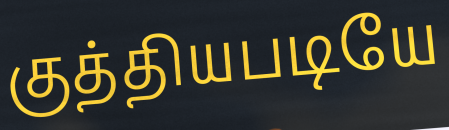
குத்தியபடியே